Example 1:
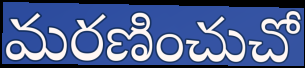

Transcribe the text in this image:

మరణించుచో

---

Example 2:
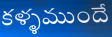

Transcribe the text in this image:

కళ్ళముందే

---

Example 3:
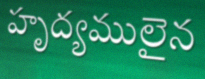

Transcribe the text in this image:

హృద్యములైన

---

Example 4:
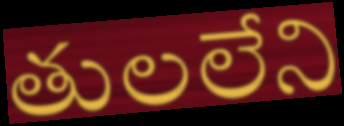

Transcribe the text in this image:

తులలేని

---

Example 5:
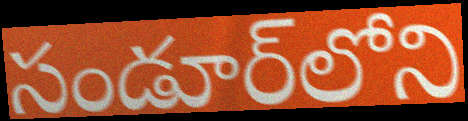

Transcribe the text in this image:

సండూర్‌లోని